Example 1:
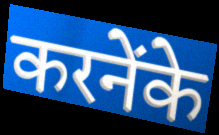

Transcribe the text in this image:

करनेंके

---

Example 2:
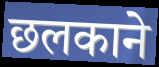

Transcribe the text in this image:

छलकाने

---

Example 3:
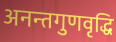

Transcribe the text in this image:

अनन्तगुणवृद्धि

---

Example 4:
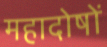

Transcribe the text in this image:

महादोषों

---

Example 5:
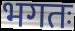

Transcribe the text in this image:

भगतः